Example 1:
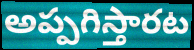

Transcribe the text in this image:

అప్పగిస్తారట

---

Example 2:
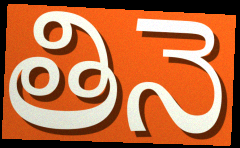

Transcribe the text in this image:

తినె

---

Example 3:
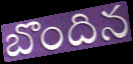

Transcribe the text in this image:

బొందిన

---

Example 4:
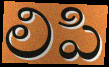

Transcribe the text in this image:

లిపి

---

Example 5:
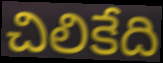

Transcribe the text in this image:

చిలికేది